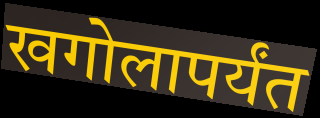
खगोलापर्यंत